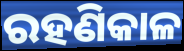
ରହଣିକାଳ